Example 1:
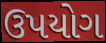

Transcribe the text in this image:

ઉપયોગ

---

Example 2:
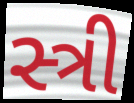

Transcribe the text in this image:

સ્ત્રી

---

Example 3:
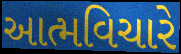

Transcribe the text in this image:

આત્મવિચારે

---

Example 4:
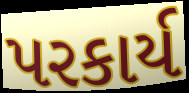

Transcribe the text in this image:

પરકાર્ય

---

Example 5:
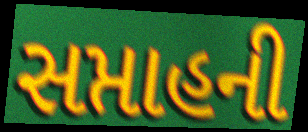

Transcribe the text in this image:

સપ્તાહની